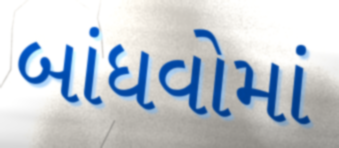
બાંધવોમાં